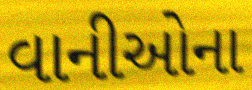
વાનીઓના